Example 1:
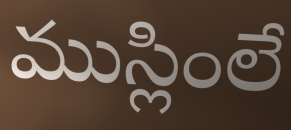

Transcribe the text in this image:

ముస్లింలే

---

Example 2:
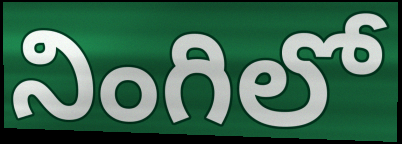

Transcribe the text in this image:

నింగిలో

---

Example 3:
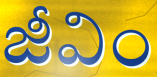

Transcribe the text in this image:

జీవిం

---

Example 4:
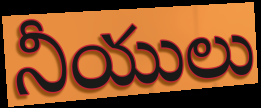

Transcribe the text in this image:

నీయులు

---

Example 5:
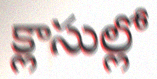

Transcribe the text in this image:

క్లాసుల్లో